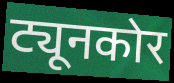
ट्यूनकोर